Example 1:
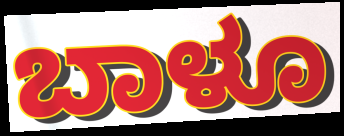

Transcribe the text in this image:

ಬಾಳೂ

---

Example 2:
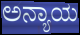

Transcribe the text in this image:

ಅನ್ಯಾಯ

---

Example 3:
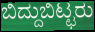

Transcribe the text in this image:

ಬಿದ್ದುಬಿಟ್ಟರು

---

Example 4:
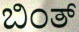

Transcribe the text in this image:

ಬಿಂತ್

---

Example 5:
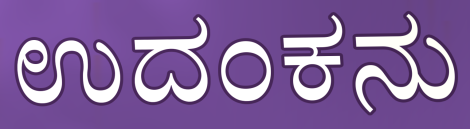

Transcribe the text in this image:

ಉದಂಕನು